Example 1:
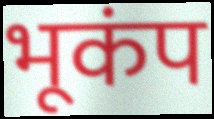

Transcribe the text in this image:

भूकंप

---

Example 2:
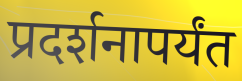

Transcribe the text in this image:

प्रदर्शनापर्यंत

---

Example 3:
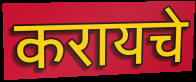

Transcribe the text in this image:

करायचे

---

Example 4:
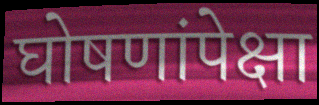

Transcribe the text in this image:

घोषणांपेक्षा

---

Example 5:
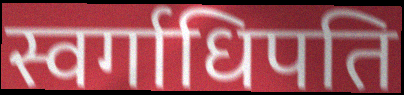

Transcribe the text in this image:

स्वर्गाधिपति